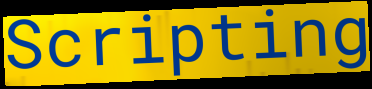
Scripting